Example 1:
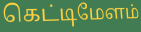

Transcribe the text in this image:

கெட்டிமேளம்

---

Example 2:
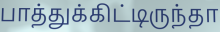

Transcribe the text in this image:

பாத்துக்கிட்டிருந்தா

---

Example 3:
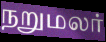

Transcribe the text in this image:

நறுமலர்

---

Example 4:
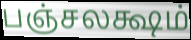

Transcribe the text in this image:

பஞ்சலக்ஷம்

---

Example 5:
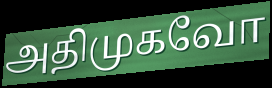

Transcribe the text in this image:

அதிமுகவோ